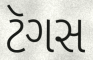
ટૅગસ